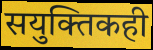
सयुक्तिकही